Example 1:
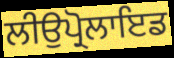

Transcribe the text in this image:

ਲੀਉਪ੍ਰੋਲਾਇਡ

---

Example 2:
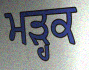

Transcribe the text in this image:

ਮੜ੍ਹਕ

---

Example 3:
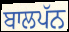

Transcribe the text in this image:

ਬਾਲਪੱਨ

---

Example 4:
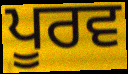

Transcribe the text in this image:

ਪੂਰਵ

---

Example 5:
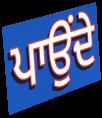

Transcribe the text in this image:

ਪਾਉਂਦੇ